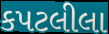
કપટલીલા